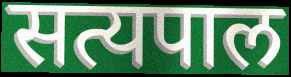
सत्यपाल